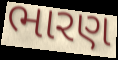
ભારણ